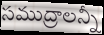
సముద్రాలన్నీ